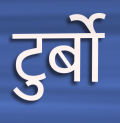
टुर्बो